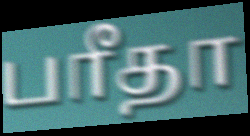
பரீதா